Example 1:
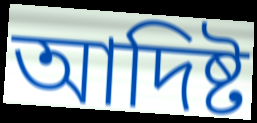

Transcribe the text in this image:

আদিষ্ট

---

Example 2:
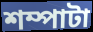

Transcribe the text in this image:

শম্পাটা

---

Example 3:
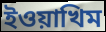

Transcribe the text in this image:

ইওয়াখিম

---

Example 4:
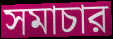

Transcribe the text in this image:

সমাচার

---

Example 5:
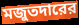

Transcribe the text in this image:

মজুতদারের